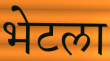
भेटला